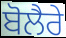
ਬੋਲੈਰੇ